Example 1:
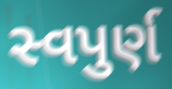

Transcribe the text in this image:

સ્વપુર્ણ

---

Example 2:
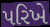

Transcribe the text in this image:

પરિખે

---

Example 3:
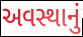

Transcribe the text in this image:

અવસ્થાનું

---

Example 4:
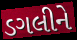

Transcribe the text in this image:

ડગલીને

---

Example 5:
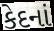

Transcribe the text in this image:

કેદનાં